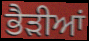
ਭੈੜੀਆਂ